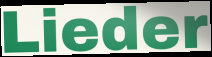
Lieder